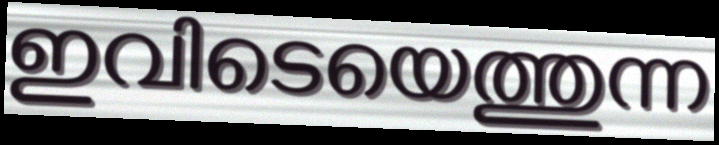
ഇവിടെയെത്തുന്ന